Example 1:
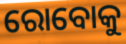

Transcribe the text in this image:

ରୋବୋକୁ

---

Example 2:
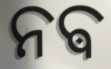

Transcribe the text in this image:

ନଵ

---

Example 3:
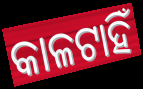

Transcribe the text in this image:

କାଳଟାହିଁ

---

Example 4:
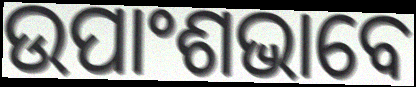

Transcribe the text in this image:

ଉପାଂଶଭାବେ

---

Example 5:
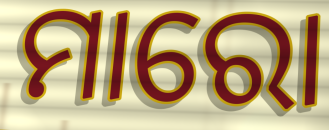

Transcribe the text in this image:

ମାରୋ